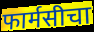
फार्मसीचा